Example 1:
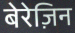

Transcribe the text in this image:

बेरेज़िन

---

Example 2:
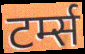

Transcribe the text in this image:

टर्म्स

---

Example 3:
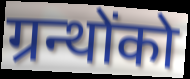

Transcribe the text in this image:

ग्रन्थोंको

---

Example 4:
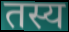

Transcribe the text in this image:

तस्य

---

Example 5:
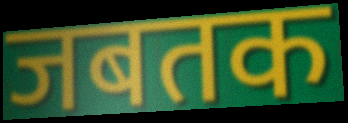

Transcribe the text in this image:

जबतक